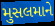
મુસલમાને